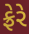
ફ્રેરે